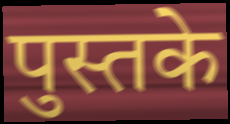
पुस्‍तके